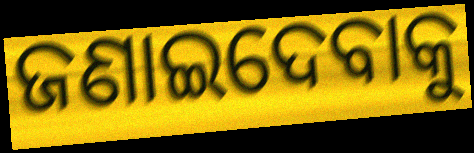
ଜଣାଇଦେବାକୁ